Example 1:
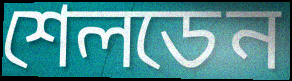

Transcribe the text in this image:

শেলডেন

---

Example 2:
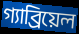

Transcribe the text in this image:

গ্যাব্রিয়েল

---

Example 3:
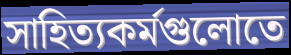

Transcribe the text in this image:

সাহিত্যকর্মগুলোতে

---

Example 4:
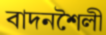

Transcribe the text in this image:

বাদনশৈলী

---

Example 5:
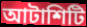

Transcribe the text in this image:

আটাশিটি